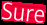
Sure